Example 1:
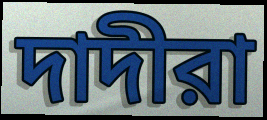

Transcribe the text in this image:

দাদীরা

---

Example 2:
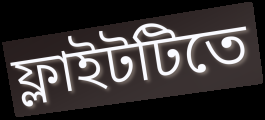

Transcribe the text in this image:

ফ্লাইটটিতে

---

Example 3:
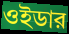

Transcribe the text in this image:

ওইডার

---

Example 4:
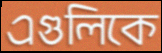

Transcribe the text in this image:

এগুলিকে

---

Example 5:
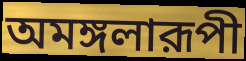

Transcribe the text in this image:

অমঙ্গলারূপী